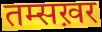
तम्सख़र